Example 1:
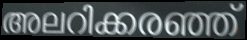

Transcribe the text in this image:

അലറിക്കരഞ്ഞ്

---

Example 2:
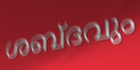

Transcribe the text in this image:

ശബ്ദവും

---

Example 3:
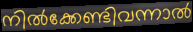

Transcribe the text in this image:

നിൽക്കേണ്ടിവന്നാൽ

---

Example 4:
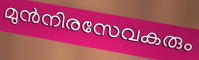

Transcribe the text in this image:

മുൻനിരസേവകരും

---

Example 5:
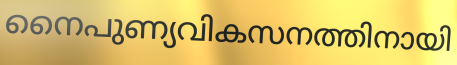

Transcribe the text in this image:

നൈപുണ്യവികസനത്തിനായി